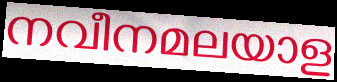
നവീനമലയാള